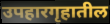
उपहारगृहातील